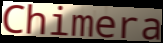
Chimera